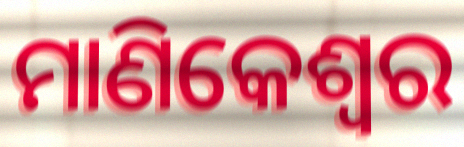
ମାଣିକେଶ୍ଵର